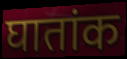
घातांक